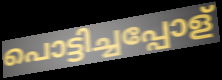
പൊട്ടിച്ചപ്പോള്